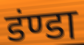
डंण्डा